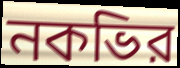
নকভির